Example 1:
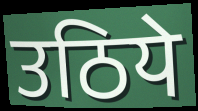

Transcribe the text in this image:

उठिये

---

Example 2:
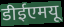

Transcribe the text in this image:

डीईएमयू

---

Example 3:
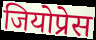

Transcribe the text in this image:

जियोप्रेस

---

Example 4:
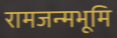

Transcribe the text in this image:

रामजन्मभूमि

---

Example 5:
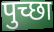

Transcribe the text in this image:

पुच्छा